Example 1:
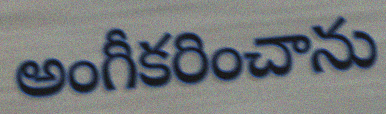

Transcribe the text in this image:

అంగీకరించాను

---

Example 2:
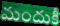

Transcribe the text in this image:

మందుకీ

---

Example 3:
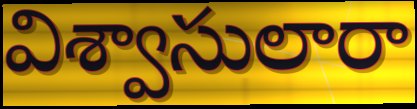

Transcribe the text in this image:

విశ్వాసులారా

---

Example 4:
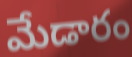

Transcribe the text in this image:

మేడారం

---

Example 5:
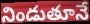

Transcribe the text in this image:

నిండుతూనే